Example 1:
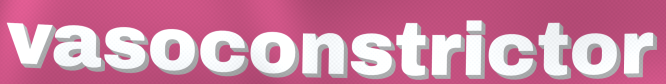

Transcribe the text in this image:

vasoconstrictor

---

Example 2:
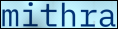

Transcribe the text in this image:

mithra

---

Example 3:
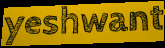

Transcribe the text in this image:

yeshwant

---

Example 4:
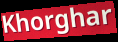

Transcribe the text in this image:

Khorghar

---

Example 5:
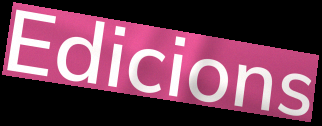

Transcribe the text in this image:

Edicions